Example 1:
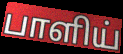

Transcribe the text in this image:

பாளிய்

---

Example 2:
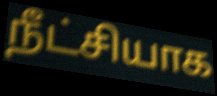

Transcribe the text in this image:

நீட்சியாக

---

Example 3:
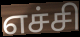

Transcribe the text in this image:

எச்சி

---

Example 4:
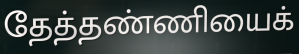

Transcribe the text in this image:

தேத்தண்ணியைக்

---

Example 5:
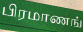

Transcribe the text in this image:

பிரமாணங்